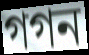
গগন